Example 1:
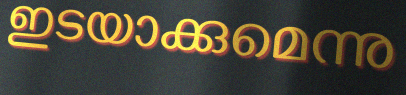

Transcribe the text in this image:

ഇടയാക്കുമെന്നു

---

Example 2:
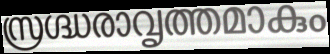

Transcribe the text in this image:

സ്രഗ്ദ്ധരാവൃത്തമാകും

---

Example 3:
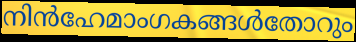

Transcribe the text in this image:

നിൻഹേമാംഗകങ്ങൾതോറും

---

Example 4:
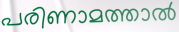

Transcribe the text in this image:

പരിണാമത്താൽ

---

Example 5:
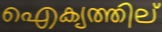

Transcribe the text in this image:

ഐക്യത്തില്